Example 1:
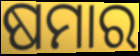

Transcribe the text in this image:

ଷମାର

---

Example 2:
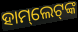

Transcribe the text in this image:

ହାମ୍‌ଲେଟ୍‌ଙ୍କ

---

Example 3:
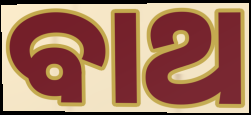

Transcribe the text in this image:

ବାଥ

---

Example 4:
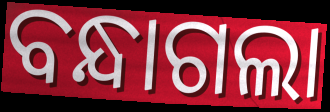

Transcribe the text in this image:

ବନ୍ଧାଗଲା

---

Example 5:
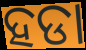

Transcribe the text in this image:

ହଡା